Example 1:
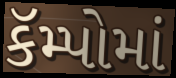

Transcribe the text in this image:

કૅમ્પોમાં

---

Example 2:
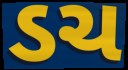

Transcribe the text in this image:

ડચ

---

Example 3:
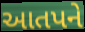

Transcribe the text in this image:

આતપને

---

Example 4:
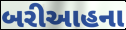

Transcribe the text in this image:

બરીઆહના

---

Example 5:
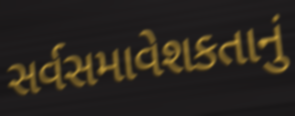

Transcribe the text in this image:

સર્વસમાવેશકતાનું